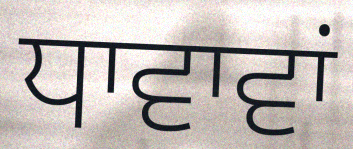
ਧਾਵਾਵਾਂ